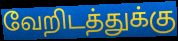
வேறிடத்துக்கு